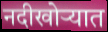
नदीखोर्‍यात